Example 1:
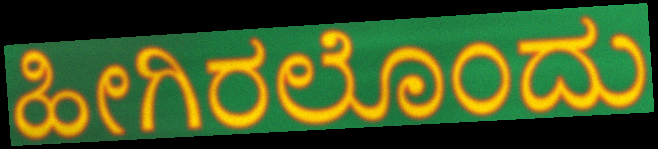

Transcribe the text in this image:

ಹೀಗಿರಲೊಂದು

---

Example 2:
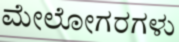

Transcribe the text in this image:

ಮೇಲೋಗರಗಳು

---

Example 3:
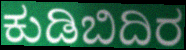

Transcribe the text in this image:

ಕುಡಿಬಿದಿರ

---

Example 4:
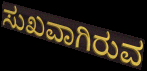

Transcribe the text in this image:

ಸುಖವಾಗಿರುವ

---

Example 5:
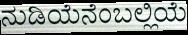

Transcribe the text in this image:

ನುಡಿಯೆನೆಂಬಲ್ಲಿಯೆ